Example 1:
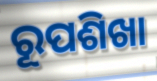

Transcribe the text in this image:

ରୂପଶିଖା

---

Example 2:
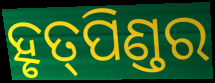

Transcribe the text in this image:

ହୃତ୍‍ପିଣ୍ଡର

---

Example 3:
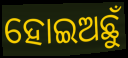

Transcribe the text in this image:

ହୋଇଅଛୁଁ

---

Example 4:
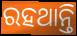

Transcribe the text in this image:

ରହଥାନ୍ତି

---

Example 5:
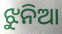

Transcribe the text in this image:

ଝୁନିଆ